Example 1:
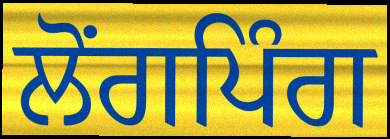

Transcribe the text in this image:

ਲੋਂਗਪਿੰਗ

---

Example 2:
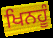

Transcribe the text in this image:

ਖਿਨਹੂੰ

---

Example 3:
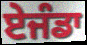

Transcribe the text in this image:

ਏਜੰਡਾ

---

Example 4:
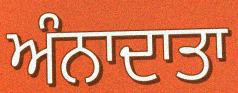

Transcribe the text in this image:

ਅੰਨਾਦਾਤਾ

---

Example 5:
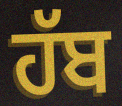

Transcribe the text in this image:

ਹੱਬ